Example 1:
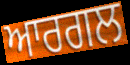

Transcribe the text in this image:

ਆਰਗਲ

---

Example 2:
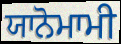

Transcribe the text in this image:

ਯਾਨੋਮਾਮੀ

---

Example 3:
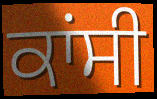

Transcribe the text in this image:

ਕਾਂਸੀ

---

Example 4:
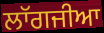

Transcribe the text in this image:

ਲਾੱਗਜੀਆ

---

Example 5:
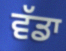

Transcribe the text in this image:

ਵੱਡਾ